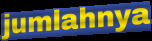
jumlahnya